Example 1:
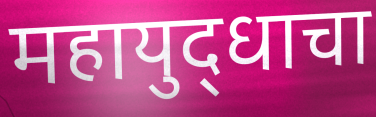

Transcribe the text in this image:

महायुद्धाचा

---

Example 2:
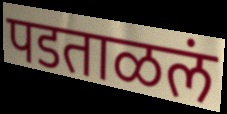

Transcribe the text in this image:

पडताळलं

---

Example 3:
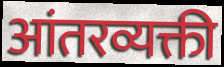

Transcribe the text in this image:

आंतरव्यक्ती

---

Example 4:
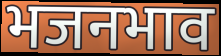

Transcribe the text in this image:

भजनभाव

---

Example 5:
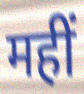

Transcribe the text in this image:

महीं